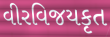
વીરવિજયકૃત